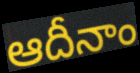
ఆదీనాం